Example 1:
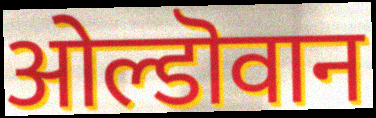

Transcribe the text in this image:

ओल्डॊवान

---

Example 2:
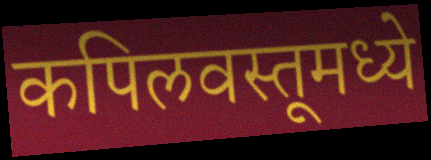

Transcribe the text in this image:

कपिलवस्तूमध्ये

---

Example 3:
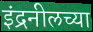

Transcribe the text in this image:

इंद्रनीलच्या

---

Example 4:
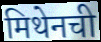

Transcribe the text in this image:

मिथेनची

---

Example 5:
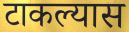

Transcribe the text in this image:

टाकल्यास